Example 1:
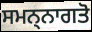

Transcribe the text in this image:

ਸਮਨ੍ਨਾਗਤੋ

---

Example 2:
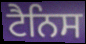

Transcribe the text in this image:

ਟੈਨਿਸ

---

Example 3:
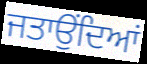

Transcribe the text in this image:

ਜਤਾਉੰਦਿਆਂ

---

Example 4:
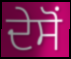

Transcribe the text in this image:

ਦੇਸੋਂ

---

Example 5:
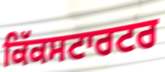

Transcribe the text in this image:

ਕਿੱਕਸਟਾਰਟਰ